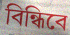
বিন্ধিবে